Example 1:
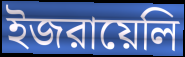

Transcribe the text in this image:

ইজরায়েলি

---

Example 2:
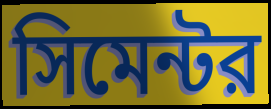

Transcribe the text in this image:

সিমেন্টর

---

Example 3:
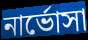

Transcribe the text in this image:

নার্ভোসা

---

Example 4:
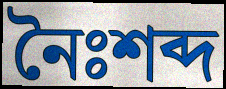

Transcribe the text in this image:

নৈঃশব্দ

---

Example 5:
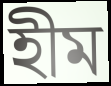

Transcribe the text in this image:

হীম